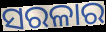
ସରଳାର